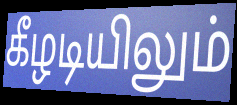
கீழடியிலும்